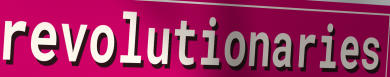
revolutionaries